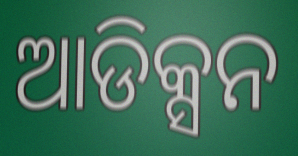
ଆଡିକ୍ସନ